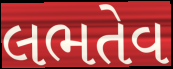
લભતેવ